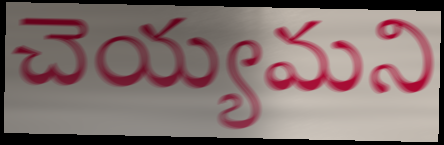
చెయ్యమని